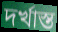
দৰ্খাস্ত